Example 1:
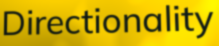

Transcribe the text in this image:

Directionality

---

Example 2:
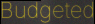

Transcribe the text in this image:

Budgeted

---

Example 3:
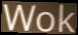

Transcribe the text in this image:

Wok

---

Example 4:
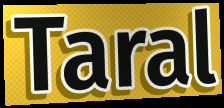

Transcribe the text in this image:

Taral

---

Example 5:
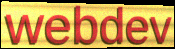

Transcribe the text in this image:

webdev